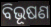
ବିଭୂଷଣ